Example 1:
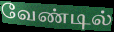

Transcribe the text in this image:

வேண்டில்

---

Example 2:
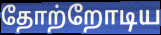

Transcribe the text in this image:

தோற்றோடிய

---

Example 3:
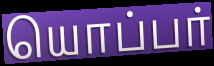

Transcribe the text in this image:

யொப்பர்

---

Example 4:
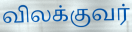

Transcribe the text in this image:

விலக்குவர்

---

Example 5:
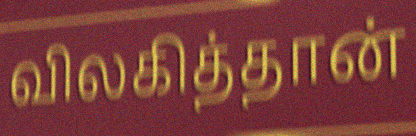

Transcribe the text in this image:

விலகித்தான்